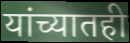
यांच्यातही